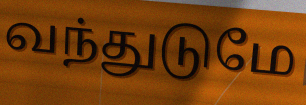
வந்துடுமே